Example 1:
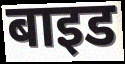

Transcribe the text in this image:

बाइड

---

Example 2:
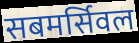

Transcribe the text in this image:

सबमर्सिवल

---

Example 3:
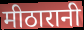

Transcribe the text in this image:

मीठारानी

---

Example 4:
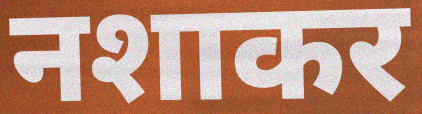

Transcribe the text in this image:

नशाकर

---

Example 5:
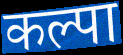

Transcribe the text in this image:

कल्पा